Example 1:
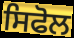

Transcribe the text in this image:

ਸਿਫੋਲ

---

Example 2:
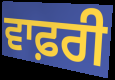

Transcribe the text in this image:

ਵਾਫ਼ਰੀ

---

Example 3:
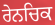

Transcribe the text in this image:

ਰੇਨਚਿਕ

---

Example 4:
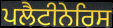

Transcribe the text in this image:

ਪਲੈਟੀਨੇਰਿਸ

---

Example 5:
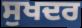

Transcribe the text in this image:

ਸੁਖਦਰ